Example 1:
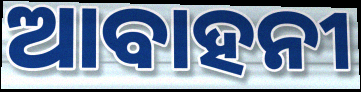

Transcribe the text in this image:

ଆବାହନୀ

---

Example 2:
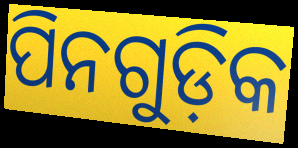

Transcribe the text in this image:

ପିନଗୁଡ଼ିକ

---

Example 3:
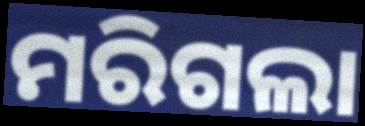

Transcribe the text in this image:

ମରିଗଲା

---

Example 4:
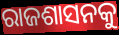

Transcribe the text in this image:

ରାଜଶାସନକୁ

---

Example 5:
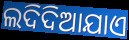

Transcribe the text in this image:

ଲଦିଦିଆଯାଏ